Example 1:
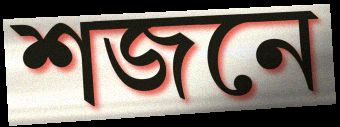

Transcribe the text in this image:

শজনে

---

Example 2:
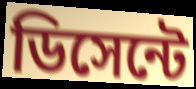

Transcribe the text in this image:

ডিসেন্টে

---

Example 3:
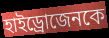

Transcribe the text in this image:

হাইড্রোজেনকে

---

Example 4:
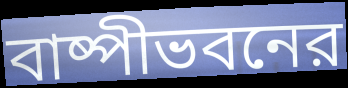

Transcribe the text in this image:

বাষ্পীভবনের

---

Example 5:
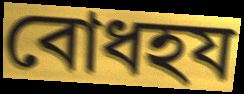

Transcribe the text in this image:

বোধহয